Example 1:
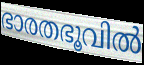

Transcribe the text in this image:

ഭാരതഭൂവിൽ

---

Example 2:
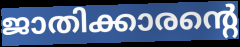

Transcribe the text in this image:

ജാതിക്കാരന്റെ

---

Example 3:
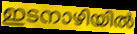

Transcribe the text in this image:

ഇടനാഴിയിൽ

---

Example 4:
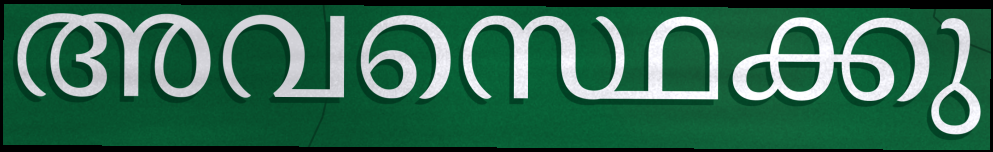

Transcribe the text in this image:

അവസ്ഥെക്കു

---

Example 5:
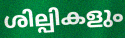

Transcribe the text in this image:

ശില്പികളും